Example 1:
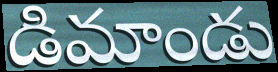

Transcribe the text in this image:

డిమాండు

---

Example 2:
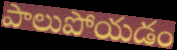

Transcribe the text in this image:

పాలుపోయడం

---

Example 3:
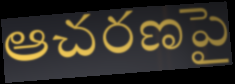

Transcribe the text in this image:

ఆచరణపై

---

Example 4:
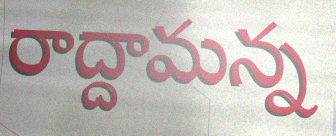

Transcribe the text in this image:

రాద్దామన్న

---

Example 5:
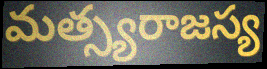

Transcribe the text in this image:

మత్స్యరాజస్య